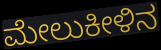
ಮೇಲುಕೀಳಿನ